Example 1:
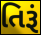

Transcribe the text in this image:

તિરૂં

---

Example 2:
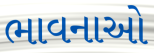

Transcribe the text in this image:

ભાવનાઓ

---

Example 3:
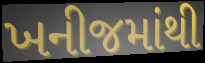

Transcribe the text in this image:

ખનીજમાંથી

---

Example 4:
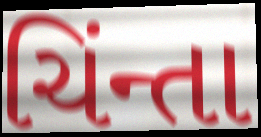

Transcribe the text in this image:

ચિંન્તા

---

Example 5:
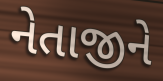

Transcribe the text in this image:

નેતાજીને